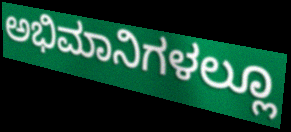
ಅಭಿಮಾನಿಗಳಲ್ಲೂ